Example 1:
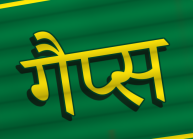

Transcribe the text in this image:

गैप्स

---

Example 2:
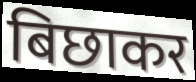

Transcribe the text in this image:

बिछाकर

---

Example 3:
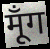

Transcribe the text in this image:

मूँग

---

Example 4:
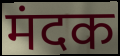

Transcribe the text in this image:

मंदक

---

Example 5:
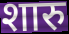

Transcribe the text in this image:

शारु